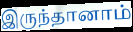
இருந்தானாம்